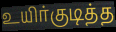
உயிர்குடித்த